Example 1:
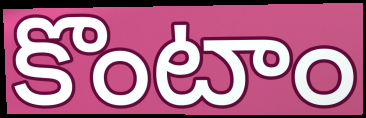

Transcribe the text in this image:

కొంటాం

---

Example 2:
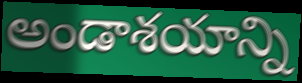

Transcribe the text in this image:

అండాశయాన్ని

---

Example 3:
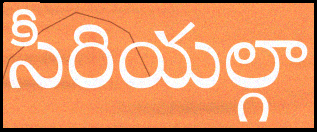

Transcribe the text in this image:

సీరియల్గా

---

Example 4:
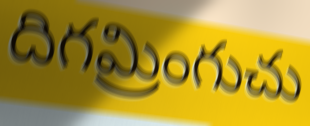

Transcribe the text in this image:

దిగమ్రింగుచు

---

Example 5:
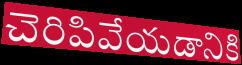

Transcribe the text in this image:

చెరిపివేయడానికి